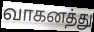
வாகனத்து